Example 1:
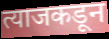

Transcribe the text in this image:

त्याजकडून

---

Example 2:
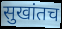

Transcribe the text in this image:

सुखांतच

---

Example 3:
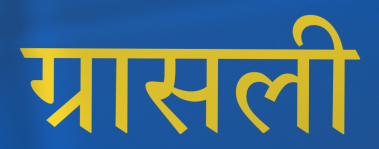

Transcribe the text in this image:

ग्रासली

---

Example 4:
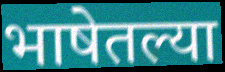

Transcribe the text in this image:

भाषेतल्या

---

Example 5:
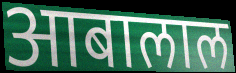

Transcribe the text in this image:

आबालाल